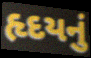
હૃદયનું